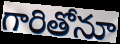
గారితోనూ